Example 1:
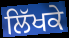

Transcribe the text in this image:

ਲਿੱਖਕੇ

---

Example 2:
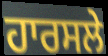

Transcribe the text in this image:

ਹਾਰਸਲੇ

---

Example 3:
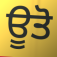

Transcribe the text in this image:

ਊਤੋ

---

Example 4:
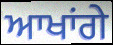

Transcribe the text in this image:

ਆਖਾਂਗੇ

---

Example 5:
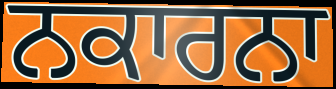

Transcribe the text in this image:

ਨਕਾਰਨਾ